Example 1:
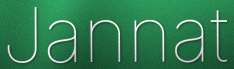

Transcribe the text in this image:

Jannat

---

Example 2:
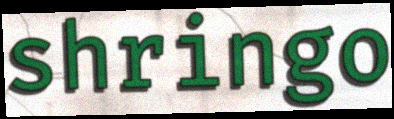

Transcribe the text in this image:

shringo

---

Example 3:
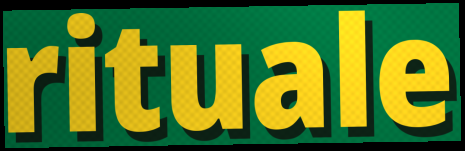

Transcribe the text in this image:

rituale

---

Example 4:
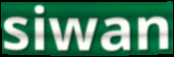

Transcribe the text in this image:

siwan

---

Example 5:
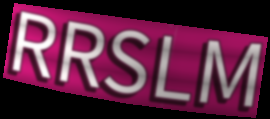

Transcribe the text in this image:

RRSLM